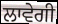
ਲਾਵੇਗੀ